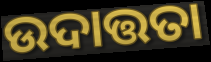
ଉଦାତ୍ତତା